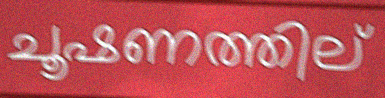
ചൂഷണത്തില്